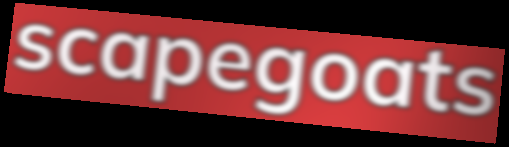
scapegoats